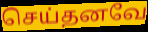
செய்தனவே